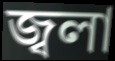
জ্বলা